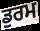
ਡੁਰਮ